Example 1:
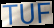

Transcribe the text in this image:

TUF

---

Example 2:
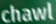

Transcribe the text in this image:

chawl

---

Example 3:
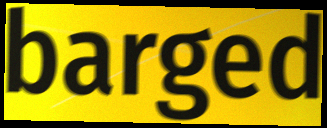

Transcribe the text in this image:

barged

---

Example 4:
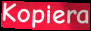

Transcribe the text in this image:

Kopiera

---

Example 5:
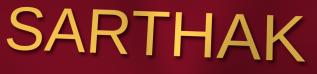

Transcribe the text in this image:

SARTHAK